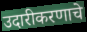
उदारीकरणाचे